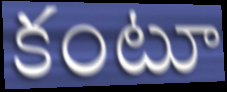
కంటూ